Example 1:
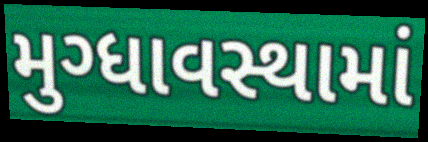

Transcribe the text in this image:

મુગ્ધાવસ્થામાં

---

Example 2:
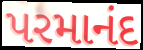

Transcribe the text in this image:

પરમાનંદ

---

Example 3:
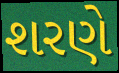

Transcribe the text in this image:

શરણે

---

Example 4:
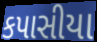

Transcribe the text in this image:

કપાસીયા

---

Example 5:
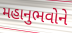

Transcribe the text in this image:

મહાનુભવોને